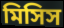
মিসিস